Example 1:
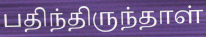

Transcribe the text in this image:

பதிந்திருந்தாள்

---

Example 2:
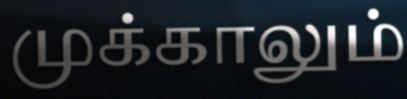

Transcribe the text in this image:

முக்காலும்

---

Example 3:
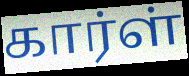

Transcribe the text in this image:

கார்ள்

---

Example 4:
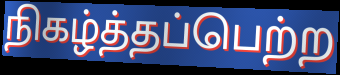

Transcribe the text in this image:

நிகழ்த்தப்பெற்ற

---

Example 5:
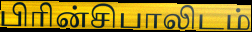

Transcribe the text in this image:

பிரின்சிபாலிடம்